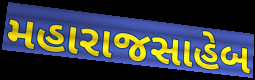
મહારાજસાહેબ